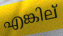
എങ്കില്